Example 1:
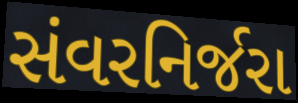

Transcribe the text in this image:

સંવરનિર્જરા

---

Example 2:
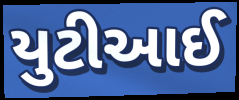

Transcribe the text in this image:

યુટીઆઈ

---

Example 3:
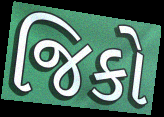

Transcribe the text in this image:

જિકો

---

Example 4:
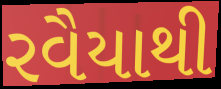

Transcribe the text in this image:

રવૈયાથી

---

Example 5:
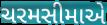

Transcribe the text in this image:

ચરમસીમાએ